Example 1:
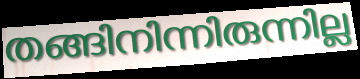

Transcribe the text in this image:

തങ്ങിനിന്നിരുന്നില്ല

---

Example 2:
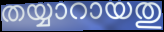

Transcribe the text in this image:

തയ്യാറായതു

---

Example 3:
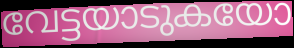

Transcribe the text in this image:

വേട്ടയാടുകയോ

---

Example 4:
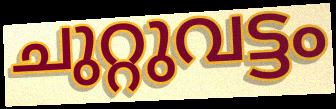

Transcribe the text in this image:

ചുറ്റുവട്ടം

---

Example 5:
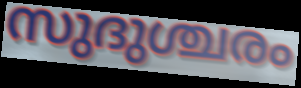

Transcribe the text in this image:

സുദുശ്ചരം